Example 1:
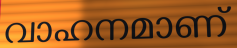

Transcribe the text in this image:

വാഹനമാണ്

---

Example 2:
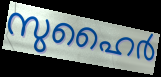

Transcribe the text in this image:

സുഹൈർ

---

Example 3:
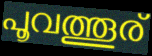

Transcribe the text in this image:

പൂവത്തൂര്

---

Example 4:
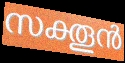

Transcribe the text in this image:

സക്തൂൻ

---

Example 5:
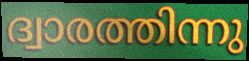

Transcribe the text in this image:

ദ്വാരത്തിന്നു